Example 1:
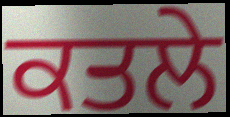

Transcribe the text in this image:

ਕਤਲੇ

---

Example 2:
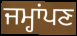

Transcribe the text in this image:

ਜਮ੍ਹਾਂਪਣ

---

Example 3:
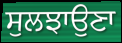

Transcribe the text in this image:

ਸੁਲਝਾਉਣਾ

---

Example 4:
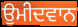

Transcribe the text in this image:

ਉਮੀਦਵਾਨ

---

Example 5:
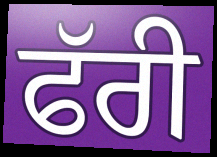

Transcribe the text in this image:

ਫੱਰੀ